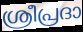
ശ്രീപ്രദാ